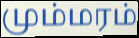
மும்மரம்